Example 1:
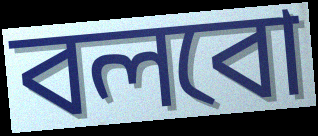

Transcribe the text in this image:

বলবো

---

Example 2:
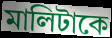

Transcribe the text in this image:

মালিটাকে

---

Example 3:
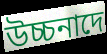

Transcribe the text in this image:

উচ্চনাদে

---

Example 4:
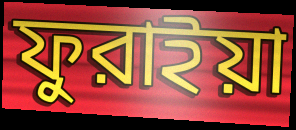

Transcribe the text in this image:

ফুরাইয়া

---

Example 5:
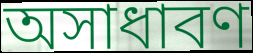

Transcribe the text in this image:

অসাধাবণ